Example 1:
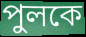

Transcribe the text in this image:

পুলকে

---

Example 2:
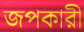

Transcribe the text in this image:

জপকারী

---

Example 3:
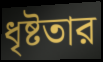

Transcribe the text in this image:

ধৃষ্টতার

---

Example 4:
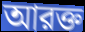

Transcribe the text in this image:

আরক্ত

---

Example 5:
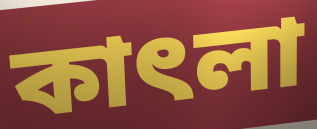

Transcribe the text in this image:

কাৎলা